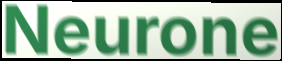
Neurone